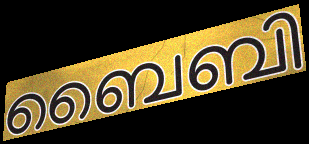
ബൈബി